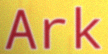
Ark